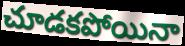
చూడకపోయినా